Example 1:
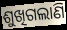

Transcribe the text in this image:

ଶୁଖିଗଲାଣି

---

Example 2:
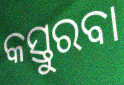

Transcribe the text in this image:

କସ୍ତୁରବା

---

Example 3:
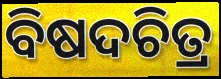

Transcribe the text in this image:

ବିଷଦଚିତ୍ର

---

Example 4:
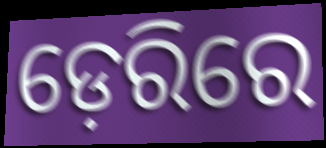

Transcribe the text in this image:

ଡ଼େରିରେ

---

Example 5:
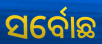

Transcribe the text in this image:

ସର୍ବୋଛ